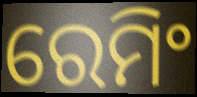
ରେମିଂ